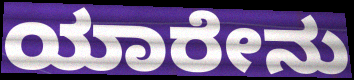
ಯಾರೇನು